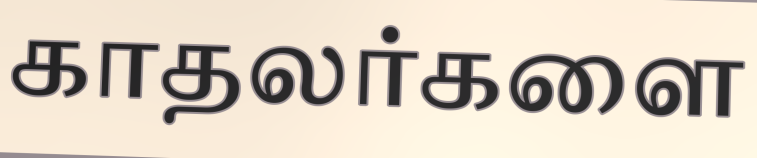
காதலர்களை